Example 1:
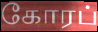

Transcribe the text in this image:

கோரப்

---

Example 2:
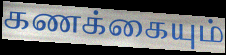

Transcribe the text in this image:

கணக்கையும்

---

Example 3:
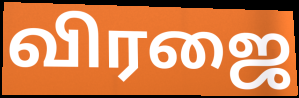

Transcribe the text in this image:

விரஜை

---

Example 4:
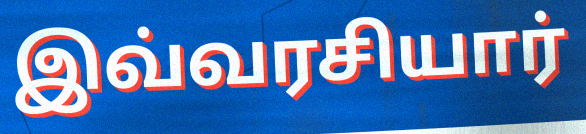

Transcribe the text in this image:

இவ்வரசியார்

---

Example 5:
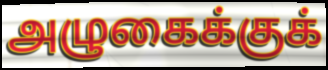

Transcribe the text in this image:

அழுகைக்குக்